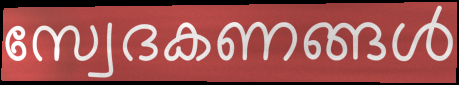
സ്വേദകണങ്ങൾ